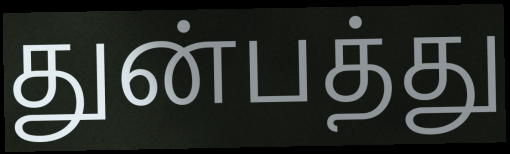
துன்பத்து